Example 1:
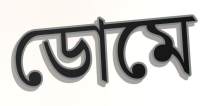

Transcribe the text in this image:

ডোমে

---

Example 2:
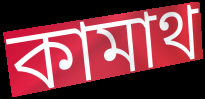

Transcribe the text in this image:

কামাথ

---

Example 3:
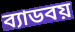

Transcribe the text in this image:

ব্যাডবয়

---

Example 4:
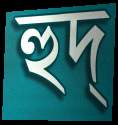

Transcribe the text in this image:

হুদ্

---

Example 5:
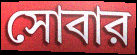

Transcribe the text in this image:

সোবার